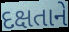
દક્ષતાને